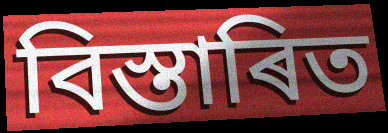
বিস্তাৰিত